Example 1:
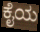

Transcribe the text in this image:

ಕೈಯ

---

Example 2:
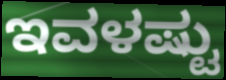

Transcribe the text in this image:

ಇವಳಷ್ಟು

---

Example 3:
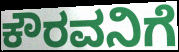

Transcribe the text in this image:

ಕೌರವನಿಗೆ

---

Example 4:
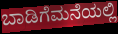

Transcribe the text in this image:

ಬಾಡಿಗೆಮನೆಯಲ್ಲಿ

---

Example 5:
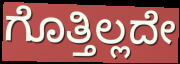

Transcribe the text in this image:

ಗೊತ್ತಿಲ್ಲದೇ